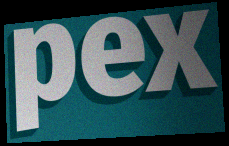
pex